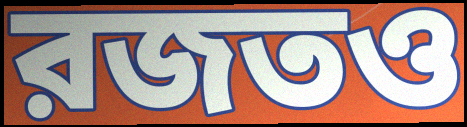
রজতও